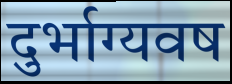
दुर्भाग्यवष